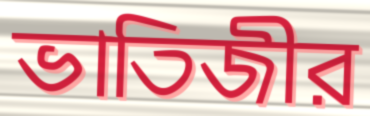
ভাতিজীর